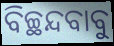
ବିଚ୍ଛନ୍ଦବାବୁ